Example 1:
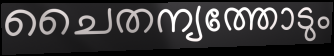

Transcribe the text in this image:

ചൈതന്യത്തോടും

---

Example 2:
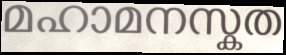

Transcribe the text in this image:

മഹാമനസ്കത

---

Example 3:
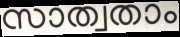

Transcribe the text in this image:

സാത്വതാം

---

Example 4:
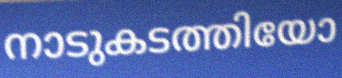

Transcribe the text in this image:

നാടുകടത്തിയോ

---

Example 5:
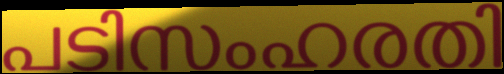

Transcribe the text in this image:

പടിസംഹരതി